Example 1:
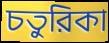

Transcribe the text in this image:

চতুরিকা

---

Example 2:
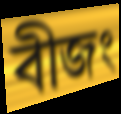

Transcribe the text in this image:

বীজং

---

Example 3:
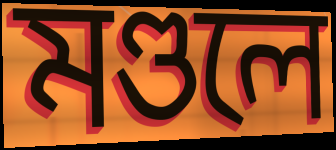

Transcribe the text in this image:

মণ্ডলে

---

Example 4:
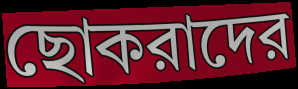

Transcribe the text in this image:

ছোকরাদের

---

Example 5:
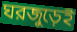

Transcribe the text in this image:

ঘরজুড়েই